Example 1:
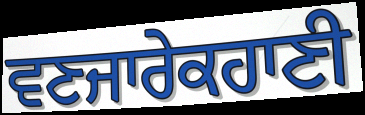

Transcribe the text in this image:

ਵਣਜਾਰੇਕਹਾਣੀ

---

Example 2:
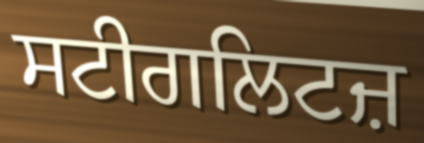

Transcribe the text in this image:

ਸਟੀਗਲਿਟਜ਼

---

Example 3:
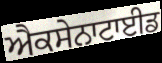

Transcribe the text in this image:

ਐਕਸੇਨਾਟਾਈਡ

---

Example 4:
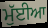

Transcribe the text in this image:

ਮੁੱਈਆ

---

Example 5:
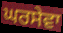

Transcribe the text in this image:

ਘਰਸੇਵਾ